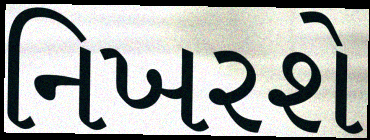
નિખરશે